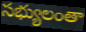
సభ్యులంతా